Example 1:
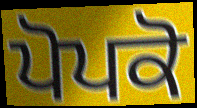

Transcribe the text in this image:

ਪੋਪਕੋ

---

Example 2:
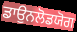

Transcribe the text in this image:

ਡਾਉਨਲੋਡਯੋਗ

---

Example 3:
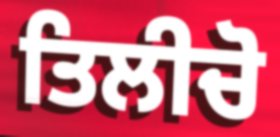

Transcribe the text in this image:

ਤਿਲੀਚੋ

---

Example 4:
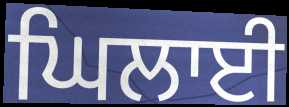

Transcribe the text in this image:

ਘਿਲਾਈ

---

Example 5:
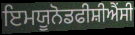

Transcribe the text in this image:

ਇਮਯੂਨੋਡਫੀਸ਼ੀਐਂਸੀ